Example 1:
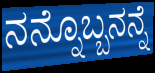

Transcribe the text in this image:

ನನ್ನೊಬ್ಬನನ್ನೆ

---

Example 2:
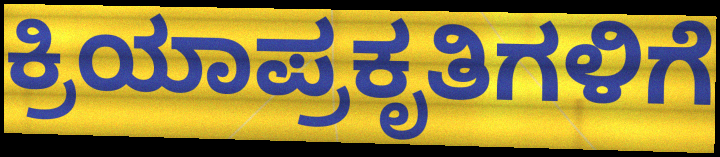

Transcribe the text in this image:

ಕ್ರಿಯಾಪ್ರಕೃತಿಗಳಿಗೆ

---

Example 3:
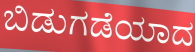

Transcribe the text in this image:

ಬಿಡುಗಡೆಯಾದ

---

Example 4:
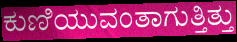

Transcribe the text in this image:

ಕುಣಿಯುವಂತಾಗುತ್ತಿತ್ತು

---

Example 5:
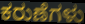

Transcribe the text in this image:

ಕರುಣೆಗಳು